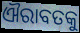
ଐରାବତକୁ